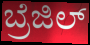
ಬ್ರೆಜಿಲ್